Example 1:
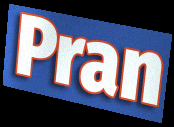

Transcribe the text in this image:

Pran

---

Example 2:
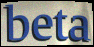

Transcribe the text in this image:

beta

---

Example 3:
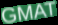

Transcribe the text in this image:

GMAT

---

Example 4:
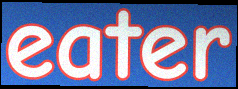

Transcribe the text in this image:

eater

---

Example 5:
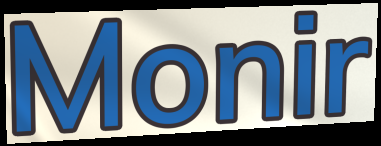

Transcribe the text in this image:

Monir